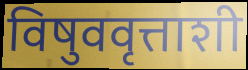
विषुववृत्ताशी